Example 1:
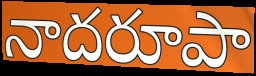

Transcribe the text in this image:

నాదరూపా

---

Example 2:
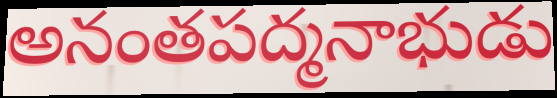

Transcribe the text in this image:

అనంతపద్మనాభుడు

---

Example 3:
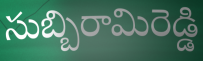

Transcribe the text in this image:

సుబ్బిరామిరెడ్డి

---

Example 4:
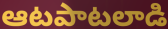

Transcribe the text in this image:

ఆటపాటలాడి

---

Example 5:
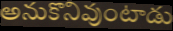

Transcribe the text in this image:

అనుకొనివుంటాడు